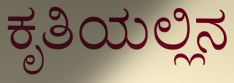
ಕೃತಿಯಲ್ಲಿನ